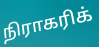
நிராகரிக்